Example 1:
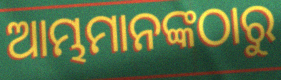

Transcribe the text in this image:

ଆମ୍ଭମାନଙ୍କଠାରୁ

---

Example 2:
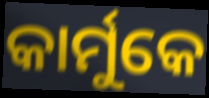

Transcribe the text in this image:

କାର୍ମୁକେ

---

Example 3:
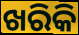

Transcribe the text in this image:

ଖରିକି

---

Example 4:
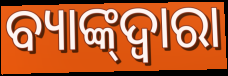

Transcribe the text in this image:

ବ୍ୟାଙ୍କ୍‌ଦ୍ୱାରା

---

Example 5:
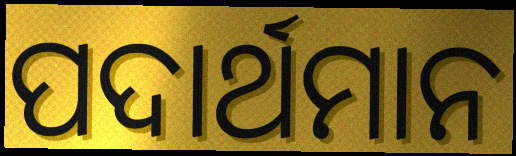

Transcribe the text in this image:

ପଦାର୍ଥମାନ